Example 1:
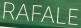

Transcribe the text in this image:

RAFALE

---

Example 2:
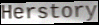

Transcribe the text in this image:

Herstory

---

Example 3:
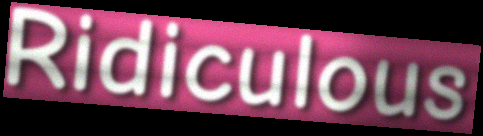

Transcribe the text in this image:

Ridiculous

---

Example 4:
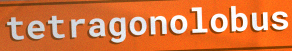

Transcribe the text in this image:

tetragonolobus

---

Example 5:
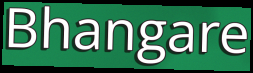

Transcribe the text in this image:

Bhangare